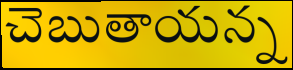
చెబుతాయన్న